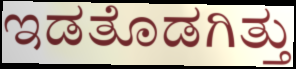
ಇಡತೊಡಗಿತ್ತು